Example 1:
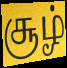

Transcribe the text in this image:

சூழ்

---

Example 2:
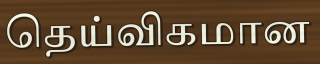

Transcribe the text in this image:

தெய்விகமான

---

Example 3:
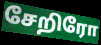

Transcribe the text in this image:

சேறிரோ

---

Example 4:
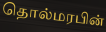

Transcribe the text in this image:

தொல்மரபின்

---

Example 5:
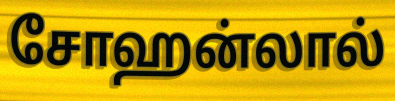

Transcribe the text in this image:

சோஹன்லால்